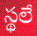
స్థలే